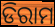
ଡିରାମ